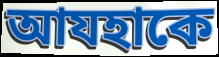
আযহাকে